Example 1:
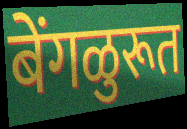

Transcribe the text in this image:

बेंगळुरूत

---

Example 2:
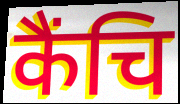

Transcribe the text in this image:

कैंचि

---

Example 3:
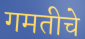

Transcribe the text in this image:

गमतीचे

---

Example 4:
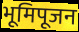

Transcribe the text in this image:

भूमिपूजन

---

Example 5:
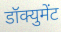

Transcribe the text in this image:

डॉक्युमेंट